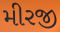
મીરજી